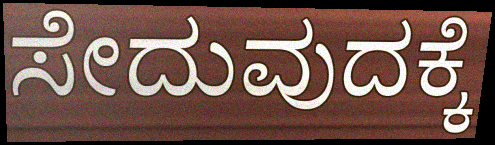
ಸೇದುವುದಕ್ಕೆ